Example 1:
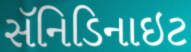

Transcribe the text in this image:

સૅનિડિનાઇટ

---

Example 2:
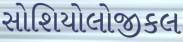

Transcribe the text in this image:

સોશિયોલોજીકલ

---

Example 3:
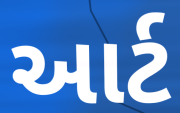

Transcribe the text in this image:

આર્ટ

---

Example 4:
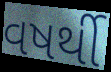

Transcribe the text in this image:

વષર્થી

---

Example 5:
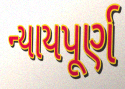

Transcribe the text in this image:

ન્યાયપૂર્ણ